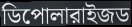
ডিপোলারাইজড